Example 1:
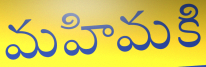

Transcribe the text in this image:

మహిమకి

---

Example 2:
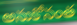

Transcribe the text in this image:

అనుకోనంత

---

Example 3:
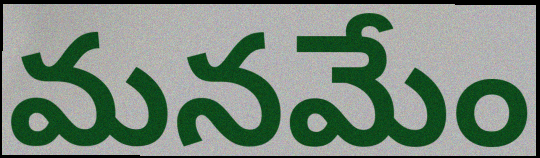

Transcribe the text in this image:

మనమేం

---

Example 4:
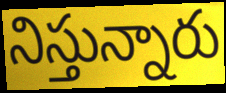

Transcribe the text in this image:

నిస్తున్నారు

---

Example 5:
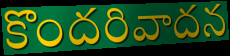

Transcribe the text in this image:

కొందరివాదన